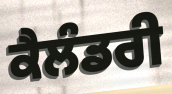
ਕੈਲੰਡਰੀ